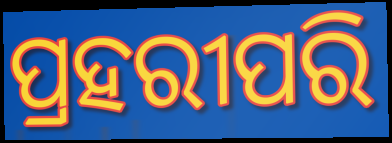
ପ୍ରହରୀପରି